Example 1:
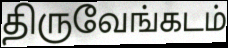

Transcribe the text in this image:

திருவேங்கடம்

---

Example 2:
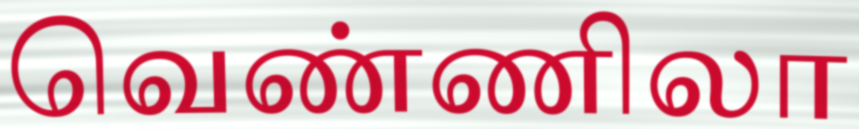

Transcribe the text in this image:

வெண்ணிலா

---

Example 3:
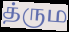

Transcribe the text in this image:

த்ரும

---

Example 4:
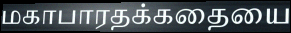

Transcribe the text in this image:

மகாபாரதக்கதையை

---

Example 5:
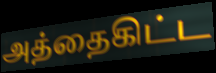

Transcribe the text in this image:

அத்தைகிட்ட